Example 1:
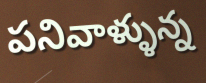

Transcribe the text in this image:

పనివాళ్ళున్న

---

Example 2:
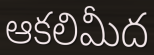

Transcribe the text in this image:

ఆకలిమీద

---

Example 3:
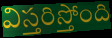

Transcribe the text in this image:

విస్తరిస్తోంది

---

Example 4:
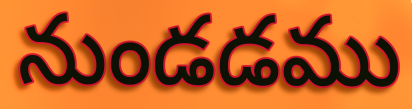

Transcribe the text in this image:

నుండడము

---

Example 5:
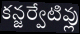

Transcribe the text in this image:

కన్జర్వేటివ్లు